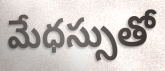
మేధస్సుతో